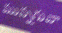
మున్నగువా